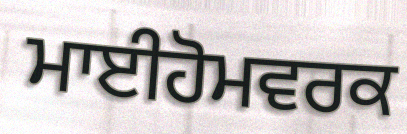
ਮਾਈਹੋਮਵਰਕ